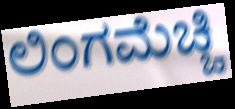
ಲಿಂಗಮೆಚ್ಚಿ